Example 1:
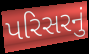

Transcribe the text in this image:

પરિસરનું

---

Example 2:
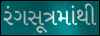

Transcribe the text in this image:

રંગસૂત્રમાંથી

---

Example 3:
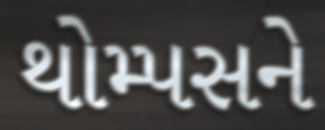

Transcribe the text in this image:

થોમ્પસને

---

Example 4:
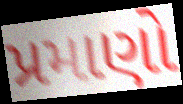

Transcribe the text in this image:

પ્રમાણો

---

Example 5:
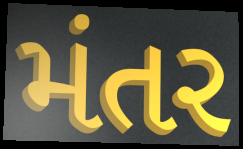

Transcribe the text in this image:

મંતર